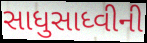
સાધુસાધ્વીની